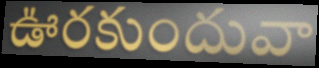
ఊరకుందువా